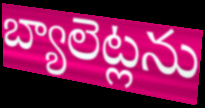
బ్యాలెట్లను